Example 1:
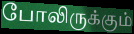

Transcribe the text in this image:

போலிருக்கும்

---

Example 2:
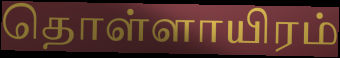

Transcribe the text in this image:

தொள்ளாயிரம்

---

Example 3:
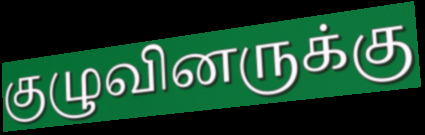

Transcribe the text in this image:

குழுவினருக்கு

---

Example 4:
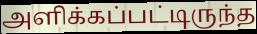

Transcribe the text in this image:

அளிக்கப்பட்டிருந்த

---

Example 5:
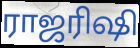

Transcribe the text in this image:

ராஜரிஷி